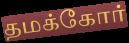
தமக்கோர்